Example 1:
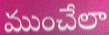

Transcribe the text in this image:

ముంచేలా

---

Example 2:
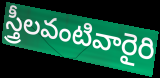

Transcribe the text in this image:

స్త్రీలవంటివారైరి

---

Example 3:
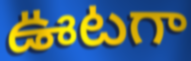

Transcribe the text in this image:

ఊటగా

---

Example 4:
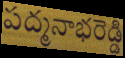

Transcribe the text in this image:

పద్మనాభరెడ్డి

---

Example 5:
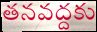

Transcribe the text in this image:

తనవద్దకు